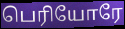
பெரியோரே